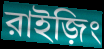
রাইজ়িং